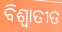
ବିଶ୍ୱାତୀତ